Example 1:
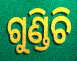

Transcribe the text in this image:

ଗୁଣ୍ଡିଚି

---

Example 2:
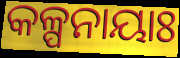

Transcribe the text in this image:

କଳ୍ପନାୟାଃ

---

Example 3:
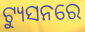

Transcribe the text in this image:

ଟ୍ୟୁସନରେ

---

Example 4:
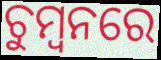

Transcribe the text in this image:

ଚୁମ୍ବନରେ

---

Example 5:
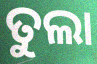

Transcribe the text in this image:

ତୁଲା